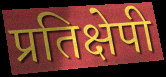
प्रतिक्षेपी